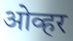
ओव्हर